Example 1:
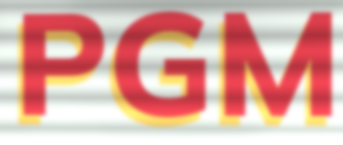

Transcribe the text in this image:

PGM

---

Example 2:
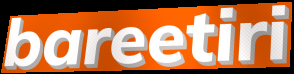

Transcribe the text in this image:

bareetiri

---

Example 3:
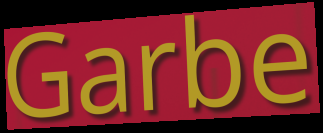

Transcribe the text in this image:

Garbe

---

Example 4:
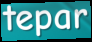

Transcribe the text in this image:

tepar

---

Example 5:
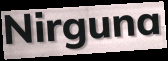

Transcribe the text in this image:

Nirguna